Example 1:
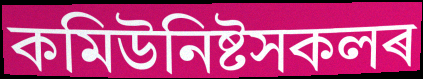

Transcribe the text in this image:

কমিউনিষ্টসকলৰ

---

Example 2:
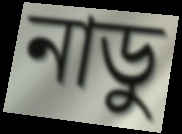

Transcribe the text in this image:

নাডু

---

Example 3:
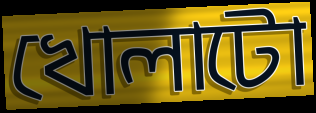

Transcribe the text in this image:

খোলাটো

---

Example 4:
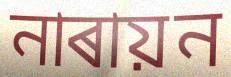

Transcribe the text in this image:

নাৰায়ন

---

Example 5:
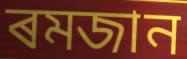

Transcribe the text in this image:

ৰমজান